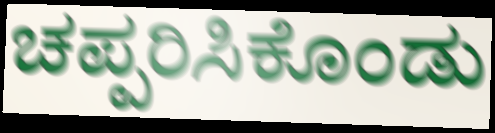
ಚಪ್ಪರಿಸಿಕೊಂಡು